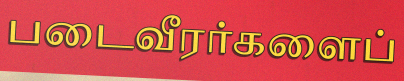
படைவீரர்களைப்